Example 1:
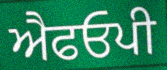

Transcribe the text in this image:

ਐਫਓਪੀ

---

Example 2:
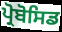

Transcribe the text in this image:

ਪ੍ਰੋਬੋਸਿਡ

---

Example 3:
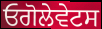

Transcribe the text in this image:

ਓਗੋਲੇਵੇਟਸ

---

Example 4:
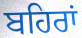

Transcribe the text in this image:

ਬਹਿਰਾਂ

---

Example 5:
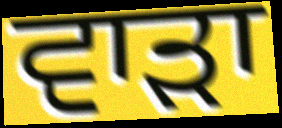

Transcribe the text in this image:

ਵਾੜਾ